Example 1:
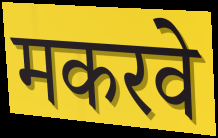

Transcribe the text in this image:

मकरवे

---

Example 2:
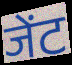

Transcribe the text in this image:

जेंट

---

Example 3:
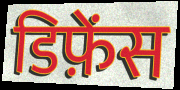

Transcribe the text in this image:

डिफ़ेंस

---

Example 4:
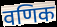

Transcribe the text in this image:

वणिक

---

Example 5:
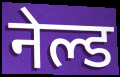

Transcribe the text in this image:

नेल्ड